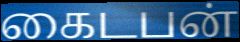
கைடபன்